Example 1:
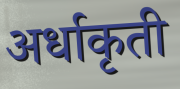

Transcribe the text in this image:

अर्धाकृती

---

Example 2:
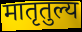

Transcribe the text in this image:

मातृतुल्य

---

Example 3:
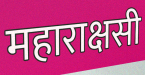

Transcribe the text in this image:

महाराक्षसी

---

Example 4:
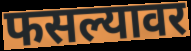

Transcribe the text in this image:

फसल्यावर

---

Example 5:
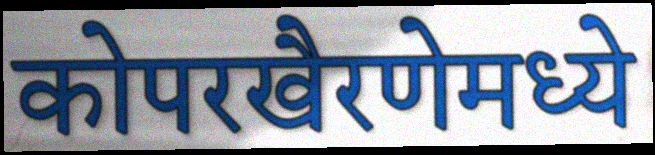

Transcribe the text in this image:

कोपरखैरणेमध्ये